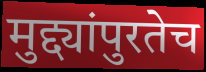
मुद्द्यांपुरतेच